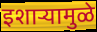
इशाऱ्यामुळे